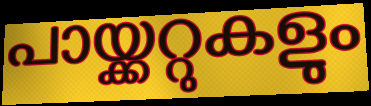
പായ്ക്കറ്റുകളും